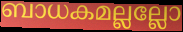
ബാധകമല്ലല്ലോ